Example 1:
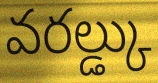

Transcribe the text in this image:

వరల్డ్కు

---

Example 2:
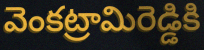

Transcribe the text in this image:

వెంకట్రామిరెడ్డికి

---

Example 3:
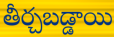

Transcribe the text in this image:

తీర్చబడ్డాయి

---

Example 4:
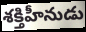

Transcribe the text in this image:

శక్తిహీనుడు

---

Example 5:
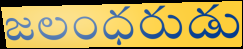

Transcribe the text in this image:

జలంధరుడు